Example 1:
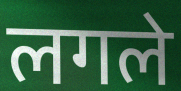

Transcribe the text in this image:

लगले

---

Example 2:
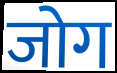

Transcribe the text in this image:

जोग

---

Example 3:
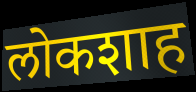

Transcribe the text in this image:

लोकशाह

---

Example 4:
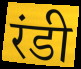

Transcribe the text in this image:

रंडी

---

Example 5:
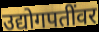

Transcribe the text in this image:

उद्योगपतींवर